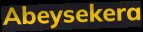
Abeysekera